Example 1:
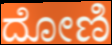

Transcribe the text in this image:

ದೋಣಿ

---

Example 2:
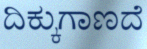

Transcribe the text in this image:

ದಿಕ್ಕುಗಾಣದೆ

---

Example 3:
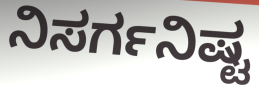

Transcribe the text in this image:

ನಿಸರ್ಗನಿಷ್ಟ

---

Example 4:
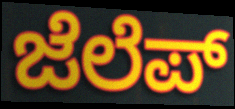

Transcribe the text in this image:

ಜೆಲೆಪ್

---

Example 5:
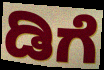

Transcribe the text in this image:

ಡಿಗೆ